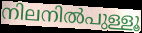
നിലനിൽപുള്ളൂ